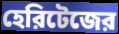
হেরিটেজের